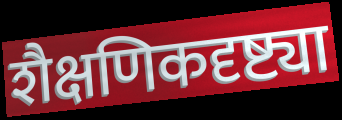
शैक्षणिकदृष्ट्या